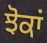
ਝੋਕਾਂ